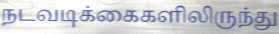
நடவடிக்கைகளிலிருந்து